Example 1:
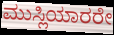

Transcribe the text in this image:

ಮುಸ್ಲಿಯಾರರೇ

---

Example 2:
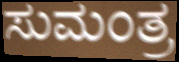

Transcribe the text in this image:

ಸುಮಂತ್ರ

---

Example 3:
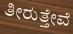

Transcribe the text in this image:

ತೀರುತ್ತೇವೆ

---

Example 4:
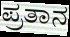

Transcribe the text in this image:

ಪ್ರತಾನ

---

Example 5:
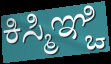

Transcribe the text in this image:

ಕಿಸ್ಮಿಞ್ಚಿ